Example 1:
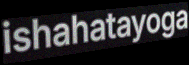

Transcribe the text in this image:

ishahatayoga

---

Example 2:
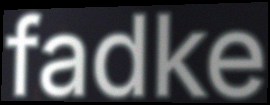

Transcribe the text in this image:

fadke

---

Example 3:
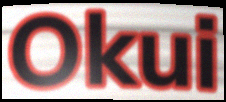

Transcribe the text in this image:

Okui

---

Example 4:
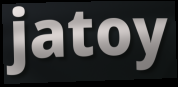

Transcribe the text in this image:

jatoy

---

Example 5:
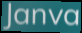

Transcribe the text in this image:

Janva